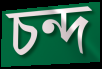
চন্দ